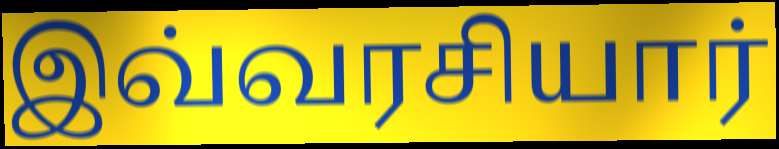
இவ்வரசியார்